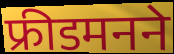
फ्रीडमनने